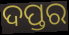
ଦପ୍ତର